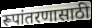
रूपांतरणासाठी